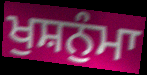
ਖੁਸ਼ਨੁੰਮਾ